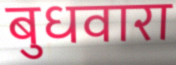
बुधवारा